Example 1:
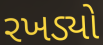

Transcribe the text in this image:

રખડ્યો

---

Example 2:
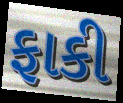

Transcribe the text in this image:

ફાકી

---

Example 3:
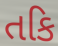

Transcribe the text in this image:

તકિ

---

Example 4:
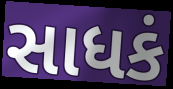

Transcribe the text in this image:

સાધકં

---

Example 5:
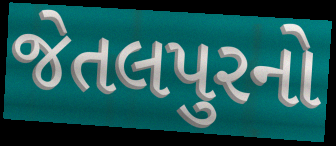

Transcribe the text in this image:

જેતલપુરનો